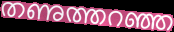
തണുത്തറഞ്ഞ